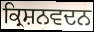
ਕ੍ਰਿਸ਼ਨਵਦਨ